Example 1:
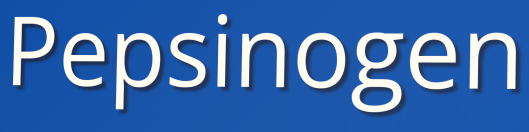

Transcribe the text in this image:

Pepsinogen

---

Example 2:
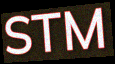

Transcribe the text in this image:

STM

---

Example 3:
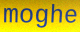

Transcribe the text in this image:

moghe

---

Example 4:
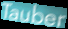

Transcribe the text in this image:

Tauber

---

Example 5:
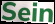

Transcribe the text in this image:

Sein